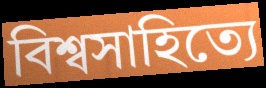
বিশ্বসাহিত্যে